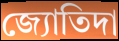
জ্যোতিদা